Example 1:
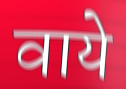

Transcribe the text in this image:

वाये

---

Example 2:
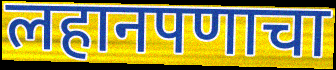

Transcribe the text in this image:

लहानपणाचा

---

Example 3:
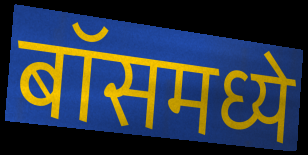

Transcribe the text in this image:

बॉसमध्ये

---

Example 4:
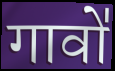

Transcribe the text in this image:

गावो॑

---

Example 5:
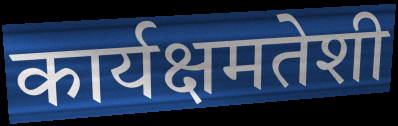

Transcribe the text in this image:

कार्यक्षमतेशी